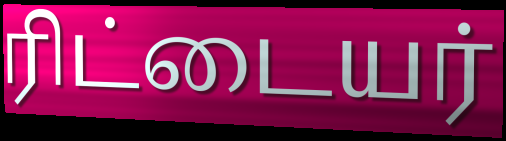
ரிட்டையர்